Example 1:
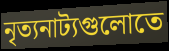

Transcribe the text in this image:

নৃত্যনাট্যগুলোতে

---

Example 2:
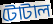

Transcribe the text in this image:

টোটাল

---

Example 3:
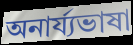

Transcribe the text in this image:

অনার্য্যভাষা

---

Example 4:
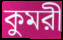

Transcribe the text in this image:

কুমরী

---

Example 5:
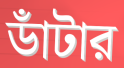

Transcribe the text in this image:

ডাঁটার